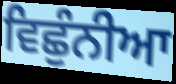
ਵਿਛੁੰਨੀਆ